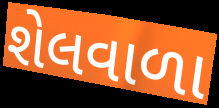
શેલવાળા